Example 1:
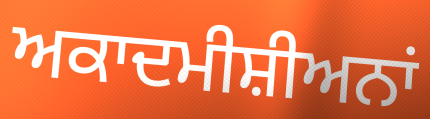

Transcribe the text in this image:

ਅਕਾਦਮੀਸ਼ੀਅਨਾਂ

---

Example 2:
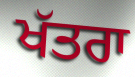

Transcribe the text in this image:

ਖੱਤਰਾ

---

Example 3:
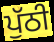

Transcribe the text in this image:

ਪੁੱਠੀ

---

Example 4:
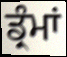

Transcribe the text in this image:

ਡ੍ਰੰਮਾਂ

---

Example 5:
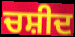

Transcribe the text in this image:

ਚਸ਼ੀਦ